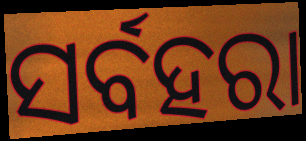
ସର୍ବହରା